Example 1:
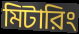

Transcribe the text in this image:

মিটারিং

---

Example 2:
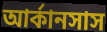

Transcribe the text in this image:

আর্কানসাস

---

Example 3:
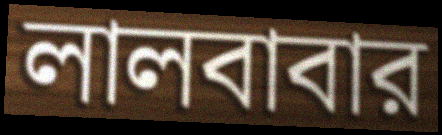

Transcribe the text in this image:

লালবাবার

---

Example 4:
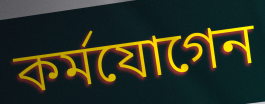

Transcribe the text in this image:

কর্মযোগেন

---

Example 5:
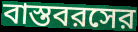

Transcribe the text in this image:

বাস্তবরসের